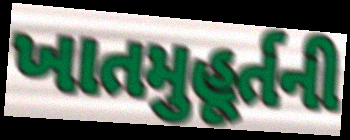
ખાતમુહૂર્તની